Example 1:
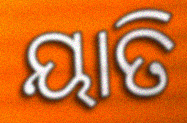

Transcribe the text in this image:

ୟାତି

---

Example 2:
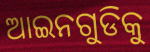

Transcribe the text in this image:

ଆଇନଗୁଡିକୁ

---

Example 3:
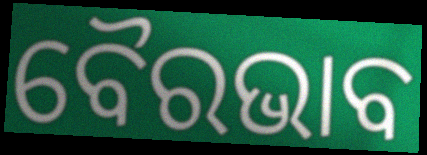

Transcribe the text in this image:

ବୈରଭାବ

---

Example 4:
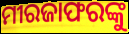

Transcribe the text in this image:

ମୀରଜାଫରଙ୍କୁ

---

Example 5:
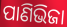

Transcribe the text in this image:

ପାଣିଭିଜା